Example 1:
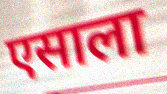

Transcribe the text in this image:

एसाला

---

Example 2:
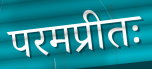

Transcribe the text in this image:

परमप्रीतः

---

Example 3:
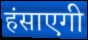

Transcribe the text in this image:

हंसाएगी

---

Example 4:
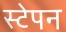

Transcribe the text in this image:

स्टेपन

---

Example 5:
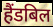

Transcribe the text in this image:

हैंडबिल